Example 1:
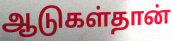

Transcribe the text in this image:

ஆடுகள்தான்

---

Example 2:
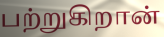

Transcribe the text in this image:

பற்றுகிறான்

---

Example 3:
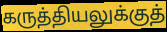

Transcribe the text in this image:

கருத்தியலுக்குத்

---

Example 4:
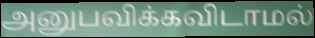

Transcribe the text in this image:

அனுபவிக்கவிடாமல்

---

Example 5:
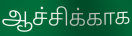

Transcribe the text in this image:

ஆச்சிக்காக